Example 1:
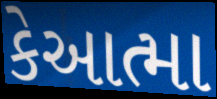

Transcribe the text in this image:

કેઆત્મા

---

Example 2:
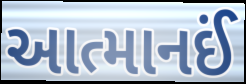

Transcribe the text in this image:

આત્માનઈં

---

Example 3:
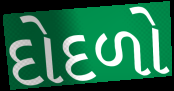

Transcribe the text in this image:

દોદળો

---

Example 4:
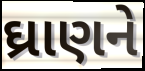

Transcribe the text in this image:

ઘ્રાણને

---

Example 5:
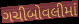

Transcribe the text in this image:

ગચીબોવલીમાં